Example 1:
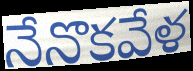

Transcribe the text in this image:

నేనొకవేళ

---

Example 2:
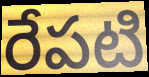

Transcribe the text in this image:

రేపటి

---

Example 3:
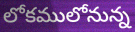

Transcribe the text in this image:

లోకములోనున్న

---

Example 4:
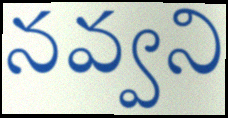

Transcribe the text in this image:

నవ్వని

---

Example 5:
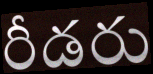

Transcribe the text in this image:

రీడరు